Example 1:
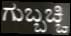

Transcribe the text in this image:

ಗುಬ್ಬಚ್ಚಿ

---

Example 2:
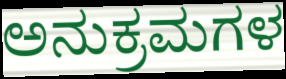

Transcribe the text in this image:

ಅನುಕ್ರಮಗಳ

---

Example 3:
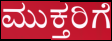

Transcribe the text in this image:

ಮುಕ್ತರಿಗೆ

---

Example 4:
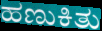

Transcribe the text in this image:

ಹಣುಕಿತು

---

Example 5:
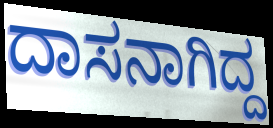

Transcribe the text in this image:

ದಾಸನಾಗಿದ್ದ